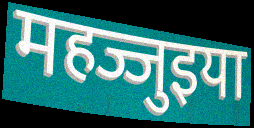
महज्जुइया